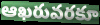
ఆఖరువరకూ